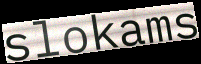
slokams